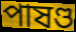
পাষণ্ড